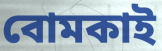
বোমকাই